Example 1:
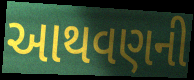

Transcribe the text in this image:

આથવણની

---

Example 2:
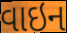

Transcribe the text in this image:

વાઇન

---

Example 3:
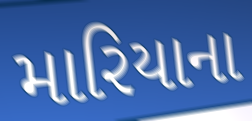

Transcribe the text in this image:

મારિયાના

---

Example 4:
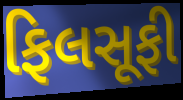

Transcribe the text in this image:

ફિલસૂફી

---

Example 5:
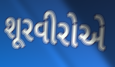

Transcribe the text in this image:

શૂરવીરોએ